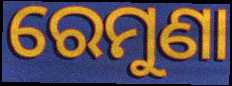
ରେମୁଣା